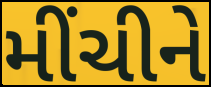
મીંચીને